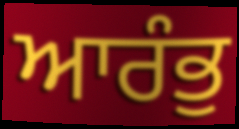
ਆਰੰਭੁ